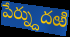
పేర్న్దుదఱి